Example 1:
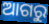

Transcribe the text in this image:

ଆଗରୁ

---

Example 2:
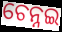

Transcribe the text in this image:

ଚେନ୍ନଇ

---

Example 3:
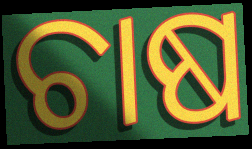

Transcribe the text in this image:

ଚାଷ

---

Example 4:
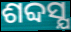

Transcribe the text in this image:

ଶବ୍ଦସ୍ଯ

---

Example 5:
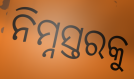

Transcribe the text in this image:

ନିମ୍ନସ୍ତରକୁ